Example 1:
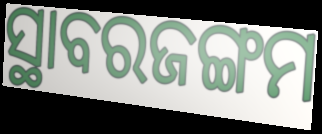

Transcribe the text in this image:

ସ୍ଥାବରଜଙ୍ଗମ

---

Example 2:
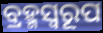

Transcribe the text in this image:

ବ୍ରହ୍ମସ୍ୱରୂପ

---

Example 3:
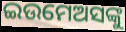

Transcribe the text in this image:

ଇଉମେଅସଙ୍କୁ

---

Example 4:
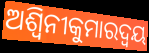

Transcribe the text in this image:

ଅଶ୍ୱିନୀକୁମାରଦ୍ୱୟ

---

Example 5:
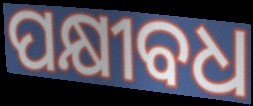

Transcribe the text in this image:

ପକ୍ଷୀବଧ